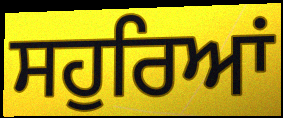
ਸਹੁਰਿਆਂ